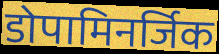
डोपामिनर्जिक